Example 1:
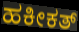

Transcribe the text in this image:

ಹಕೀಕತ್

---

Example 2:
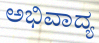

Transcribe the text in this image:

ಅಭಿವಾದ್ಯ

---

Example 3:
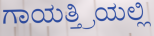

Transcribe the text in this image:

ಗಾಯತ್ತ್ರಿಯಲ್ಲಿ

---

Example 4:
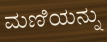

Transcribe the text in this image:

ಮಣಿಯನ್ನು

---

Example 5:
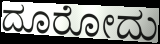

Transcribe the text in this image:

ದೂರೋದು